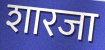
शारजा